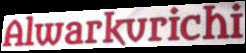
Alwarkurichi